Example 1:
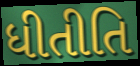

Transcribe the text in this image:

ધીતીતિ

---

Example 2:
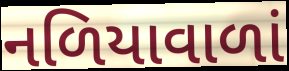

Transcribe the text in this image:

નળિયાવાળાં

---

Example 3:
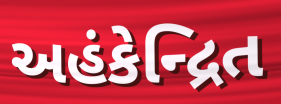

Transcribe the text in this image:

અહંકેન્દ્રિત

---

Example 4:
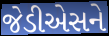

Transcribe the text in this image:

જેડીએસને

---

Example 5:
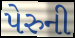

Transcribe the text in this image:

પેરુની